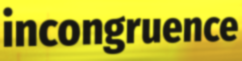
incongruence